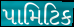
પામિટિક